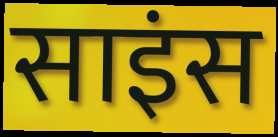
साइंस